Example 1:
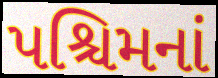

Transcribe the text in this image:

પશ્ચિમનાં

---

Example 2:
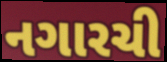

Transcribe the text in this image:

નગારચી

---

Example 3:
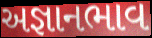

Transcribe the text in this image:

અજ્ઞાનભાવ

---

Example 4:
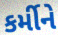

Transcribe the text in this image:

કર્મીને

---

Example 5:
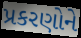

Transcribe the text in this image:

પ્રકરણોને